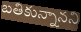
బతికున్నానని